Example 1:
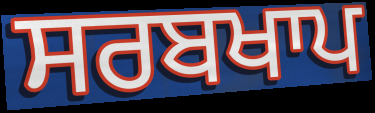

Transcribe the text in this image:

ਸਰਬਖਾਪ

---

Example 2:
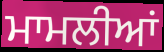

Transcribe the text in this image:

ਮਾਮਲੀਆਂ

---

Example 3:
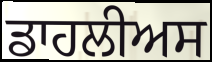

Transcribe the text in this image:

ਡਾਹਲੀਅਸ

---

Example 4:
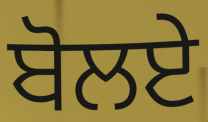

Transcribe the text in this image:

ਬੋਲਏ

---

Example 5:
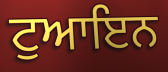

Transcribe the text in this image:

ਟੁਆਇਨ